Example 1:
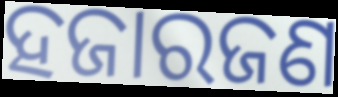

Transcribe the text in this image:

ହଜାରଜଣ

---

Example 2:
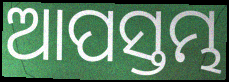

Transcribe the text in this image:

ଆପସ୍ତମ୍ଭ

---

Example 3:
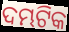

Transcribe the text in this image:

ଦମ୍ଭଟିକ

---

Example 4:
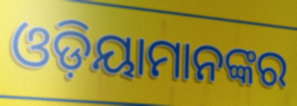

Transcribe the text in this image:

ଓଡ଼ିୟାମାନଙ୍କର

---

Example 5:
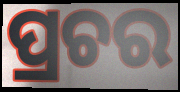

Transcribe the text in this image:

ପ୍ରଚର